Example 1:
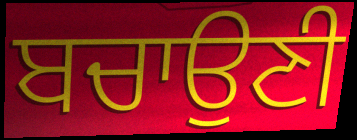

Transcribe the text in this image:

ਬਚਾਉਣੀ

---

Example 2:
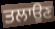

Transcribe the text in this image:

ਤਲਾਉਣ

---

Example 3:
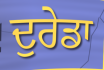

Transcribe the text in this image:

ਦੁਰੇਡਾ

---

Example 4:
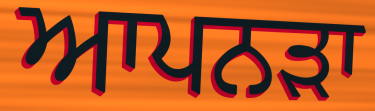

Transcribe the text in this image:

ਆਪਨੜਾ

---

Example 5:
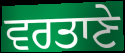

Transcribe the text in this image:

ਵਰਤਾਣੇ